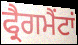
ਫ੍ਰੈਗਮੈਂਟਾਂ